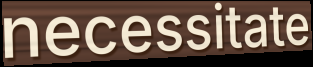
necessitate